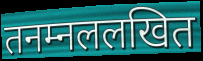
तनम्नललखित